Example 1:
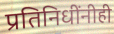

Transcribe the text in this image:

प्रतिनिधींनीही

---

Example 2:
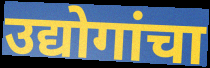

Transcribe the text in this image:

उद्योगांचा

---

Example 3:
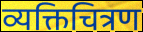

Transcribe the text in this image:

व्यक्तिचित्रण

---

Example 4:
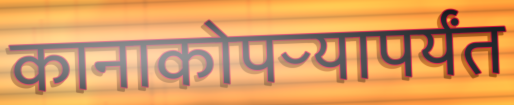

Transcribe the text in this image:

कानाकोपऱ्यापर्यंत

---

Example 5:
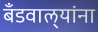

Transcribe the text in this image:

बँडवाल्यांना